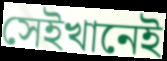
সেইখানেই